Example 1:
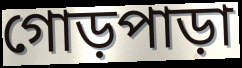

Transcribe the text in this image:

গোড়পাড়া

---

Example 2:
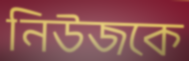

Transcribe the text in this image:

নিউজকে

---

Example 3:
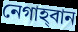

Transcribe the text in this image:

নেগাহ্‌বান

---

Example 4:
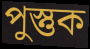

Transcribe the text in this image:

পুস্তুক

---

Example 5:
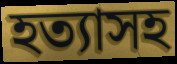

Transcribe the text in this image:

হত্যাসহ